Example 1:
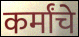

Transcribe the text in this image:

कर्मांचे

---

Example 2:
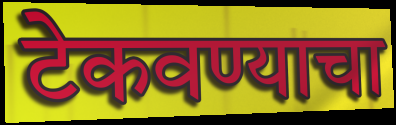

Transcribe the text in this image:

टेकवण्याचा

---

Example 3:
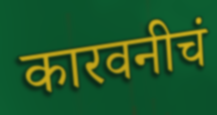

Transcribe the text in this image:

कारवनीचं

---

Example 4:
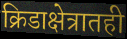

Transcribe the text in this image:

क्रिडाक्षेत्रातही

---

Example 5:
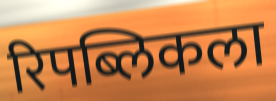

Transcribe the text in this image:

रिपब्लिकला